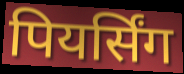
पियर्सिंग